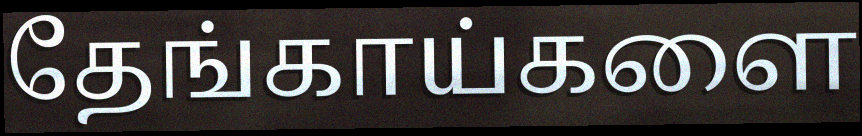
தேங்காய்களை